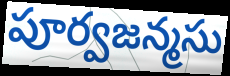
పూర్వజన్మసు